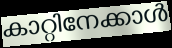
കാറ്റിനേക്കാൾ